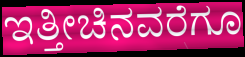
ಇತ್ತೀಚಿನವರೆಗೂ